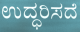
ಉದ್ಧರಿಸದೆ